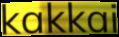
kakkai